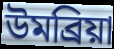
উমব্রিয়া